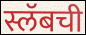
स्लॅबची